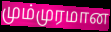
மும்முரமான